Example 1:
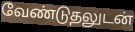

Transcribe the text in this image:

வேண்டுதலுடன்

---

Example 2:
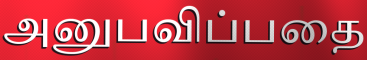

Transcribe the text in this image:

அனுபவிப்பதை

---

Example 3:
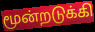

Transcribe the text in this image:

மூன்றடுக்கி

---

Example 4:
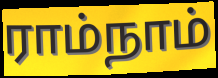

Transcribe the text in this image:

ராம்நாம்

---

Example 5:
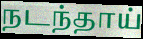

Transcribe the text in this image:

நடந்தாய்